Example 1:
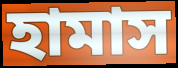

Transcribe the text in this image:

হামাস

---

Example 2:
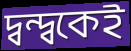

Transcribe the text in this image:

দ্বন্দ্বকেই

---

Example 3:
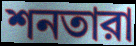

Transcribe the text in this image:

শনতারা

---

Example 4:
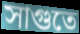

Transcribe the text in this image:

সাগুতে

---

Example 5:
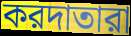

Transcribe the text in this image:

করদাতারা